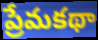
ప్రేమకథా